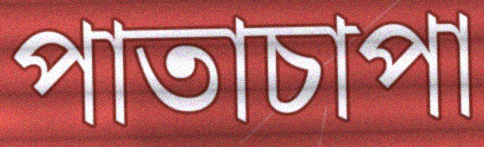
পাতাচাপা